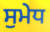
ਸੁਮੇਧ